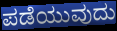
ಪಡೆಯುವುದು